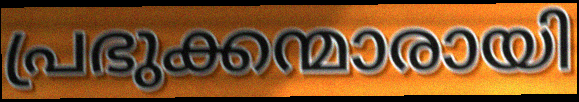
പ്രഭുക്കന്മാരായി